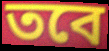
তবে